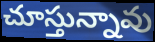
చూస్తున్నావు